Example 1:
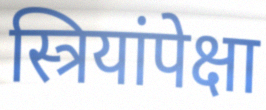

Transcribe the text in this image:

स्त्रियांपेक्षा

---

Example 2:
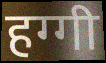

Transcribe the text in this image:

हग्गी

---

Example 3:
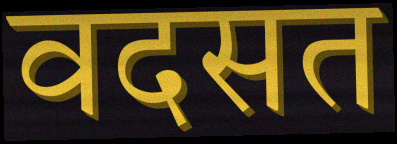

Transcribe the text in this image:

वदसत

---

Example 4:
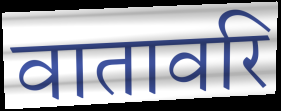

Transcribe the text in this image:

वातावरि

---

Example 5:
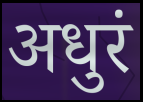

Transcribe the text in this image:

अधुरं